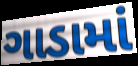
ગાડામાં